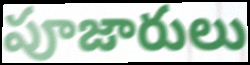
పూజారులు